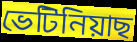
ভেটিনিয়াছ